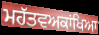
ਮਹੱਤਵਅਕਾਂਖਿਆ